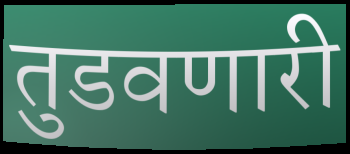
तुडवणारी